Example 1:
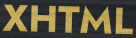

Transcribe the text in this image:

XHTML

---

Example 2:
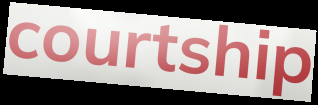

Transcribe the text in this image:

courtship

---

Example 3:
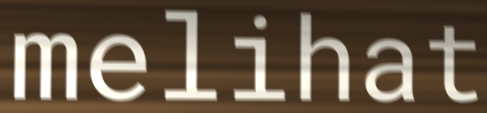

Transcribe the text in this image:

melihat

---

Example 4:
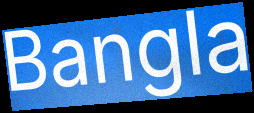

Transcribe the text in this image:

Bangla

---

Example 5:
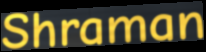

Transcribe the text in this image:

Shraman